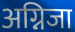
अग्निजा